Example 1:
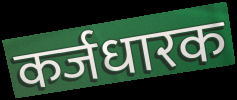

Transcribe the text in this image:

कर्जधारक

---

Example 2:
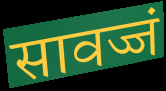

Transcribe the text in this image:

सावज्जं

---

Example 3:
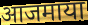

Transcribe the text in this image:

आजमाया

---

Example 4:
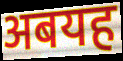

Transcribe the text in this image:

अबयह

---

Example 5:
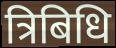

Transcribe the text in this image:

त्रिबिधि